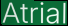
Atrial